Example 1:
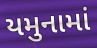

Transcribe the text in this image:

યમુનામાં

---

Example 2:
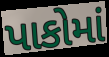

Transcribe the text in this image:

પાકોમાં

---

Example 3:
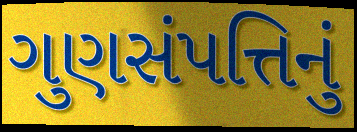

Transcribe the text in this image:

ગુણસંપત્તિનું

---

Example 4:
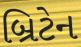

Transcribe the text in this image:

બ્રિટેન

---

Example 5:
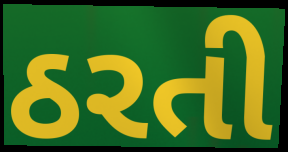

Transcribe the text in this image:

ઠરતી